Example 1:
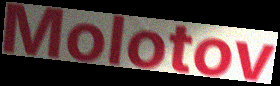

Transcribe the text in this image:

Molotov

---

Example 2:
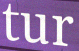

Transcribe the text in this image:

tur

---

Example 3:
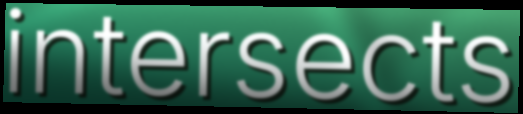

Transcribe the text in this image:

intersects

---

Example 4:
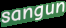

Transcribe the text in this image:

sangun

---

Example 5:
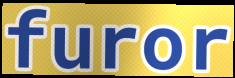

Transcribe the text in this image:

furor